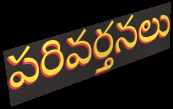
పరివర్తనలు